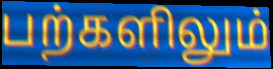
பற்களிலும்